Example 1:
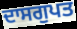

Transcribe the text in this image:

ਦਾਸਗੁਪਤ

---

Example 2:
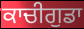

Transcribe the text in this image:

ਕਾਚੀਗੁਡਾ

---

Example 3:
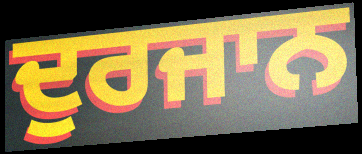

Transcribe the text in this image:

ਦੁਰਜਾਨ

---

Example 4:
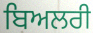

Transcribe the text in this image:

ਬਿਅਲਰੀ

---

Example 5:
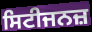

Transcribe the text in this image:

ਸਿਟੀਜਨਜ਼